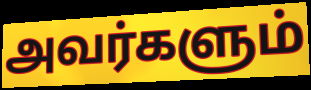
அவர்களும்